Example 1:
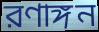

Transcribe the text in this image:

রণাঙ্গন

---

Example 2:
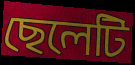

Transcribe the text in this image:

ছেলেটি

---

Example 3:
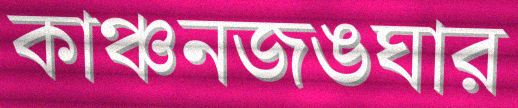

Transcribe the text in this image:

কাঞ্চনজঙঘার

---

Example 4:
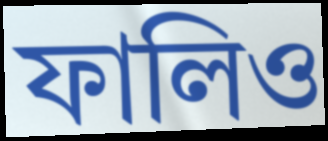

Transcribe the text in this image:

ফালিও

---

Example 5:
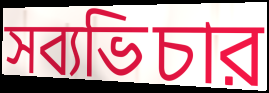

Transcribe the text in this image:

সব্যভিচার